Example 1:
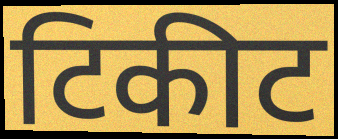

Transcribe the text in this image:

टिकीट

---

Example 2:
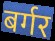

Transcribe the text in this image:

बर्गर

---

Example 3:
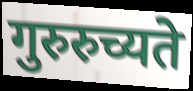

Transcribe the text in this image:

गुरुरुच्यते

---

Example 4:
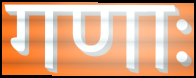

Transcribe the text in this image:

गणाः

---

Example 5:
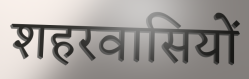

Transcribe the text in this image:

शहरवासियों